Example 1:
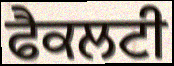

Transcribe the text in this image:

ਫੈਕਲਟੀ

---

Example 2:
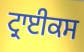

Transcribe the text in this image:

ਟ੍ਰਾਈਕਸ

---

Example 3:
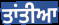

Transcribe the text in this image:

ਤਾਂਤੀਆ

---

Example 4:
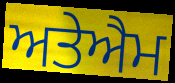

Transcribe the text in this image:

ਅਤੇਐਮ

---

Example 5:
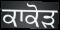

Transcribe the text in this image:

ਕਾਕੋੜ